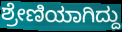
ಶ್ರೇಣಿಯಾಗಿದ್ದು